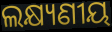
ଲକ୍ଷ୍ୟଣୀୟ